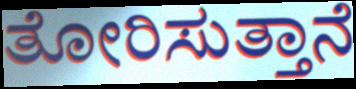
ತೋರಿಸುತ್ತಾನೆ